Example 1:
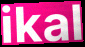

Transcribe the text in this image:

ikal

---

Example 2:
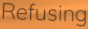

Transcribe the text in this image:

Refusing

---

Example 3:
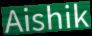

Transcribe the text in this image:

Aishik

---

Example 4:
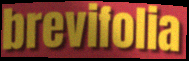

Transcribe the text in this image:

brevifolia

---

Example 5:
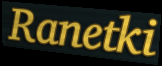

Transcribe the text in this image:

Ranetki